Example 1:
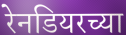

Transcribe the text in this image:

रेनडियरच्या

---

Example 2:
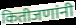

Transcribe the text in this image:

कितीजणांनी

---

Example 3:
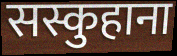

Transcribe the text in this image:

सस्कुहाना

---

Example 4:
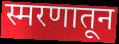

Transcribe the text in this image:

स्मरणातून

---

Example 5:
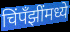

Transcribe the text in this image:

चिंपँझींमध्ये